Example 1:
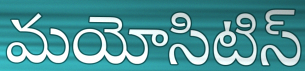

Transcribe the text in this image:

మయోసిటిస్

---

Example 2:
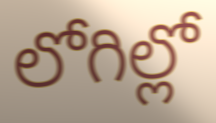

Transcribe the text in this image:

లోగిల్లో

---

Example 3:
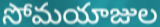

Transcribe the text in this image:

సోమయాజుల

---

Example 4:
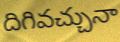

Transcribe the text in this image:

దిగివచ్చునా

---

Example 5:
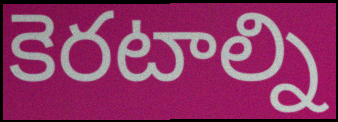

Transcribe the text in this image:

కెరటాల్ని